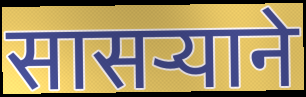
सासऱ्याने